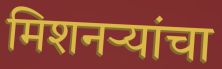
मिशनऱ्यांचा